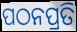
ପଠନପ୍ରତି